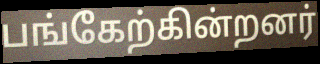
பங்கேற்கின்றனர்